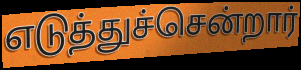
எடுத்துச்சென்றார்